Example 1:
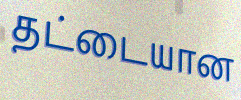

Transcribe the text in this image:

தட்டையான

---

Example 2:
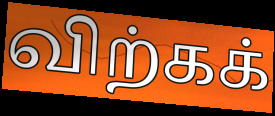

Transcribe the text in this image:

விற்கக்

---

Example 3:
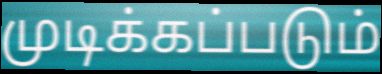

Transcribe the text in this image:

முடிக்கப்படும்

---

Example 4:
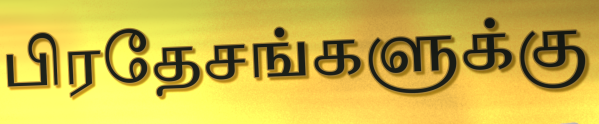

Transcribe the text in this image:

பிரதேசங்களுக்கு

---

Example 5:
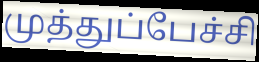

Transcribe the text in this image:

முத்துப்பேச்சி